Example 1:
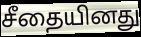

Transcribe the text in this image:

சீதையினது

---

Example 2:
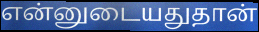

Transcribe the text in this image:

என்னுடையதுதான்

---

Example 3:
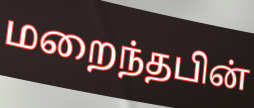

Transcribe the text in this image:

மறைந்தபின்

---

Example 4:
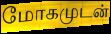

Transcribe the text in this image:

மோகமுடன்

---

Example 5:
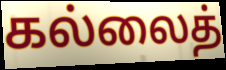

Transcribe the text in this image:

கல்லைத்